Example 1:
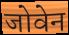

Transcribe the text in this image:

जोवेन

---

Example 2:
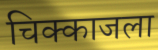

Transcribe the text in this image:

चिक्काजला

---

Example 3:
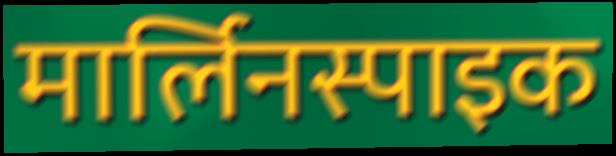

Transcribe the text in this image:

मार्लिनस्पाइक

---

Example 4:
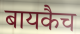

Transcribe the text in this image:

बायकैच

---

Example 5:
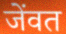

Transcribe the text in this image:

जेंवत